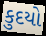
કુદયો